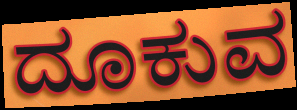
ದೂಕುವ